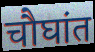
चौघांत